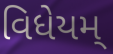
વિધેયમ્